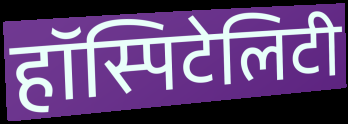
हॉस्पिटेलिटी